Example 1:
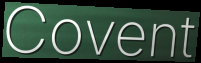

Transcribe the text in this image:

Covent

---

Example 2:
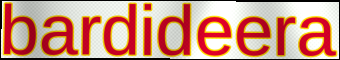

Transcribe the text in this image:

bardideera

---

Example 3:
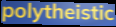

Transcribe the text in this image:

polytheistic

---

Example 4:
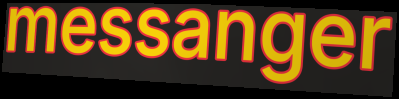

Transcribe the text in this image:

messanger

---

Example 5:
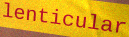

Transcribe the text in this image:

lenticular